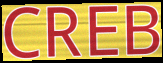
CREB